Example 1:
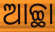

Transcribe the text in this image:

ଆଚ୍ଛା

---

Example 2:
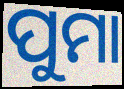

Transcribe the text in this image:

ପୁମା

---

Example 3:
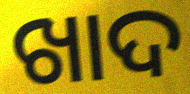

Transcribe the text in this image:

ଖାଦ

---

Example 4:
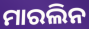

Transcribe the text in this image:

ମାରଲିନ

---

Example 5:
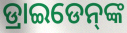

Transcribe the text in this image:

ଡ୍ରାଇଡେନ୍‌ଙ୍କ